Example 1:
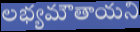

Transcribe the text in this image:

లభ్యమౌతాయని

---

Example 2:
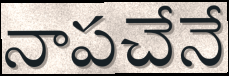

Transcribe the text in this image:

నాపచేనే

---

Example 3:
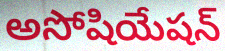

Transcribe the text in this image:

అసోషియేషన్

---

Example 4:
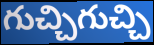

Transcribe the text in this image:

గుచ్చిగుచ్చి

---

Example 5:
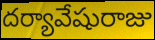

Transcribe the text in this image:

దర్యావేషురాజు